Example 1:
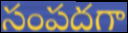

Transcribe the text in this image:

సంపదగా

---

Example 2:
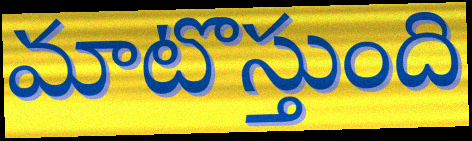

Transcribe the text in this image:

మాటొస్తుంది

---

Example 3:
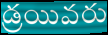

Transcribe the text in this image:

డ్రయివరు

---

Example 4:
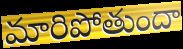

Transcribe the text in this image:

మారిపోతుందా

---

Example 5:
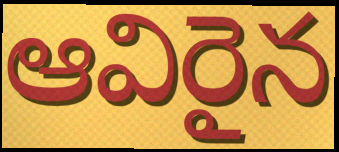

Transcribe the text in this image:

ఆవిరైన